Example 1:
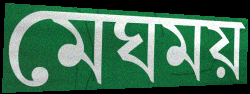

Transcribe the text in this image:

মেঘময়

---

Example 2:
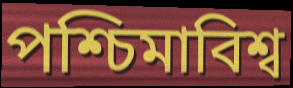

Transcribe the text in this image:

পশ্চিমাবিশ্ব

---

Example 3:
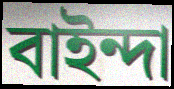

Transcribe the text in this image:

বাইন্দা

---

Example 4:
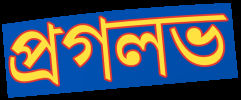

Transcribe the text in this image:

প্রগলভ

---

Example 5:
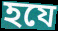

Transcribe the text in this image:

হযে